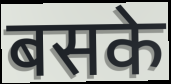
बसके